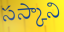
సస్కాని